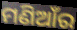
ମଣିଆଁର